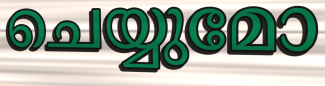
ചെയ്യുമോ